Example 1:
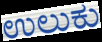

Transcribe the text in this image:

ಉಲುಕು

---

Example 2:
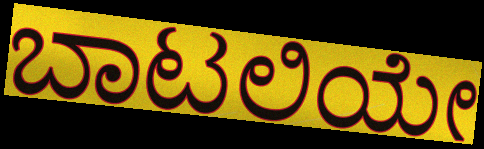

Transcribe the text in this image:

ಬಾಟಲಿಯೇ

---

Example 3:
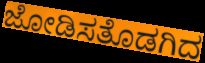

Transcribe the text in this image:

ಜೋಡಿಸತೊಡಗಿದ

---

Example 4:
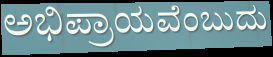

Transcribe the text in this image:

ಅಭಿಪ್ರಾಯವೆಂಬುದು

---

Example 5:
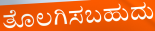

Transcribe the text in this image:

ತೊಲಗಿಸಬಹುದು